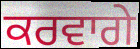
ਕਰਵਾਗੇ